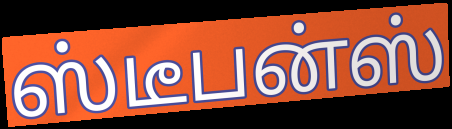
ஸ்டீபன்ஸ்